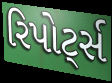
રિપોર્ટ્સ